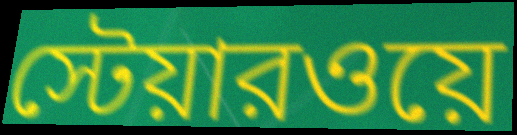
স্টেয়ারওয়ে